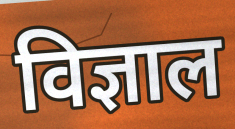
विज्ञाल